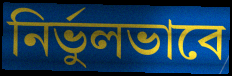
নির্ভুলভাবে